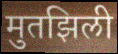
मुतझिली